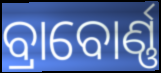
ବ୍ରାବୋର୍ଣ୍ଣ